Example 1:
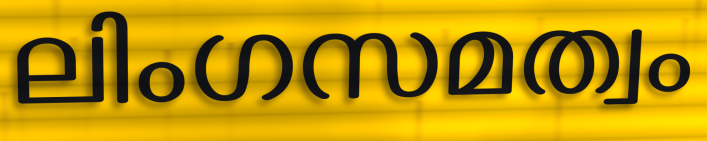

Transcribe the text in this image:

ലിംഗസമത്വം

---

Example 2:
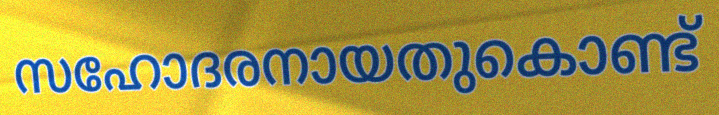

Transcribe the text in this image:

സഹോദരനായതുകൊണ്ട്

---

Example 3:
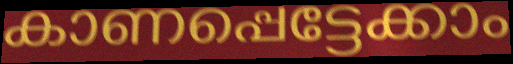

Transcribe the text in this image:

കാണപ്പെട്ടേക്കാം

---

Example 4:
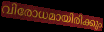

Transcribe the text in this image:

വിരോധമായിരിക്കും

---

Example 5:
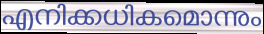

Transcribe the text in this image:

എനിക്കധികമൊന്നും